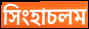
সিংহাচলম